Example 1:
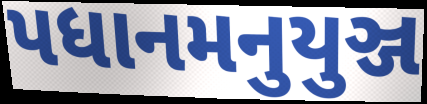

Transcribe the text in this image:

પધાનમનુયુઞ્જ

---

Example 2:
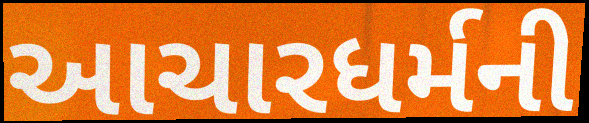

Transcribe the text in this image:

આચારધર્મની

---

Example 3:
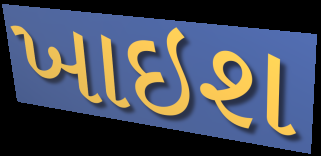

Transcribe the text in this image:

ખાઇશ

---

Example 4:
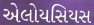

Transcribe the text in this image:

એલોયસિયસ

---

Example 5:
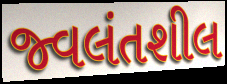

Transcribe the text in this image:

જ્વલંતશીલ